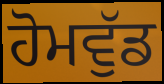
ਹੋਮਵੁੱਡ